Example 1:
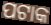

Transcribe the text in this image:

ପଟାକ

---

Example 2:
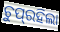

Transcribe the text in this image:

ଚୁପ୍‌ରହିଲା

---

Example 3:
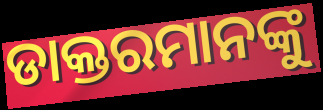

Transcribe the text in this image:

ଡାକ୍ତରମାନଙ୍କୁ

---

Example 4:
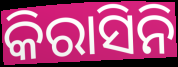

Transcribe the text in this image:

କିରାସିନି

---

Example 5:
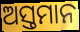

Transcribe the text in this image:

ଅସ୍ତମାନ